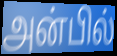
அன்பில்